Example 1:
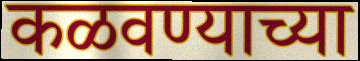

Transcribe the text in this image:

कळवण्याच्या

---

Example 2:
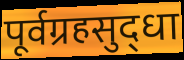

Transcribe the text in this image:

पूर्वग्रहसुद्धा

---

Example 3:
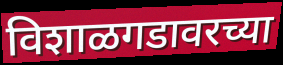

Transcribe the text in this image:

विशाळगडावरच्या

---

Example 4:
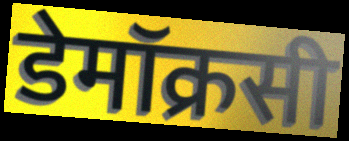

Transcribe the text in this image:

डेमॉक्रसी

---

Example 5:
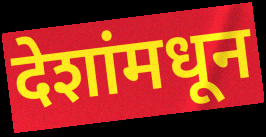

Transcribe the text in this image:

देशांमधून